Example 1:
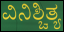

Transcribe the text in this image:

ವಿನಿಶ್ಚಿತ್ಯ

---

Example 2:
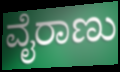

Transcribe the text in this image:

ವೈರಾಣು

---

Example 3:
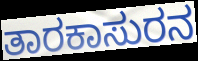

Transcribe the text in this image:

ತಾರಕಾಸುರನ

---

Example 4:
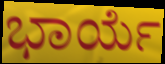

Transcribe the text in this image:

ಭಾರ್ಯೆ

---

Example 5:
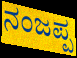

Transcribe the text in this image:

ನಂಜಪ್ಪ